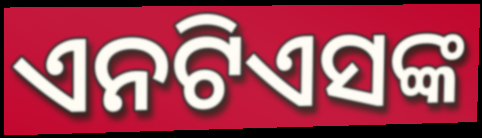
ଏନଟିଏସଙ୍କ